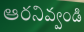
ఆరనివ్వండి